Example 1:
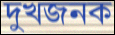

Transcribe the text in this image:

দুখজনক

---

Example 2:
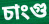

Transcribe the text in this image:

চাংগু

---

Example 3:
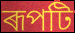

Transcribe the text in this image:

ৰূপটি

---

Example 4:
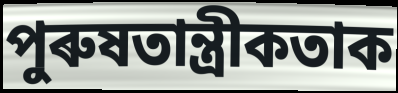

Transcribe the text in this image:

পুৰুষতান্ত্ৰীকতাক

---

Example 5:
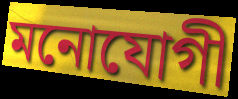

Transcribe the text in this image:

মনোযোগী